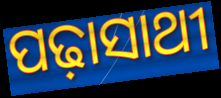
ପଢ଼ାସାଥୀ